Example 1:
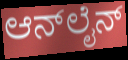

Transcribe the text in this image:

ಆನ್‌ಲೈನ್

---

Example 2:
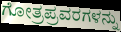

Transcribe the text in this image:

ಗೋತ್ರಪ್ರವರಗಳನ್ನು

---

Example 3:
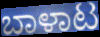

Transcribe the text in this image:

ಬಾಳಾಟ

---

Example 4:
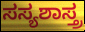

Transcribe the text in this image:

ಸಸ್ಯಶಾಸ್ತ್ರ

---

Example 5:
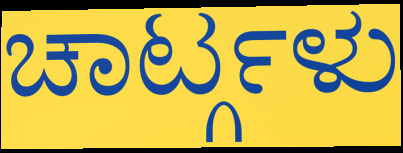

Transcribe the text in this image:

ಚಾರ್ಟ್ಗಳು